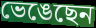
ভেঙেছেন